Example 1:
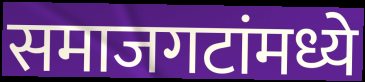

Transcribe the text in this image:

समाजगटांमध्ये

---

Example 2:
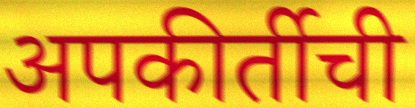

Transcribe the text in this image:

अपकीर्तीची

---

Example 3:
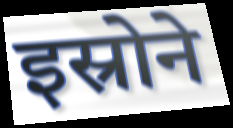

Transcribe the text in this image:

इस्रोने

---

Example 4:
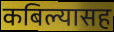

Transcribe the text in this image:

कबिल्यासह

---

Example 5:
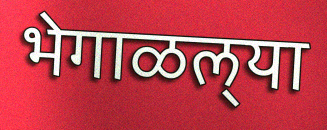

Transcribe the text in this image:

भेगाळल्या